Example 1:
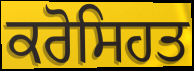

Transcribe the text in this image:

ਕਰੋਸਿਹਤ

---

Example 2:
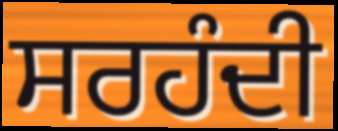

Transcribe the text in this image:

ਸਰਹੰਦੀ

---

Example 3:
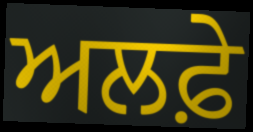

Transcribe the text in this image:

ਅਲਫ਼ੇ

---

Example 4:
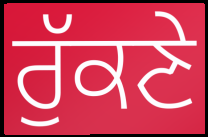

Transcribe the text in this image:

ਰੁੱਕਣੇ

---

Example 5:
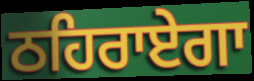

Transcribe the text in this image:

ਠਹਿਰਾਏਗਾ